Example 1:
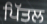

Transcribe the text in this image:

ਪਿੱਤਲ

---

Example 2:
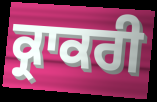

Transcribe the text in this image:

ਕ੍ਰਾਕਰੀ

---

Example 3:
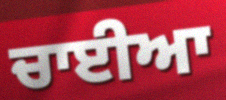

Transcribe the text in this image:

ਚਾਈਆ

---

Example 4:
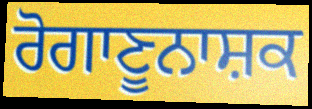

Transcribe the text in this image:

ਰੋਗਾਣੂਨਾਸ਼ਕ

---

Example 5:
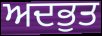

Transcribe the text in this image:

ਅਦਭੁਤ